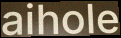
aihole